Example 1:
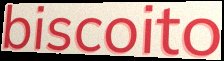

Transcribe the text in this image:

biscoito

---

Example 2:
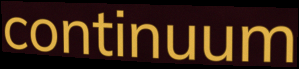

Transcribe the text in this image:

continuum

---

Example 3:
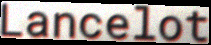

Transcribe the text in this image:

Lancelot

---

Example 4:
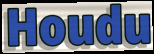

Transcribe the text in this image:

Houdu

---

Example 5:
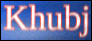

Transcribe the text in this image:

Khubj